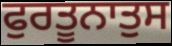
ਫੁਰਤੂਨਾਤੁਸ